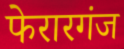
फेरारगंज